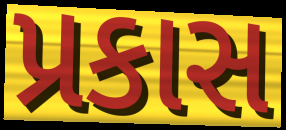
પ્રકાસ